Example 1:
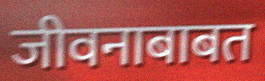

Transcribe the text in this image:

जीवनाबाबत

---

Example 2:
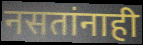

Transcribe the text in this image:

नसतांनाही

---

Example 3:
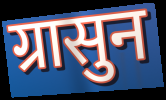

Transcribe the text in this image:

ग्रासुन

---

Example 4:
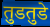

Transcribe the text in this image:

तुडतुडे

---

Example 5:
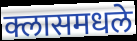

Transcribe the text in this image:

क्लासमधले